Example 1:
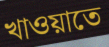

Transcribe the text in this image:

খাওয়াতে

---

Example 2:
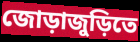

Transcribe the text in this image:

জোড়াজুড়িতে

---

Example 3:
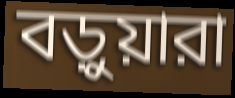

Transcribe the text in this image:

বড়ুয়ারা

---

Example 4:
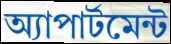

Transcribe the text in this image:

অ্যাপার্টমেন্ট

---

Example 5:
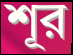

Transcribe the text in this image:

শূর